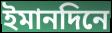
ইমানদিনে